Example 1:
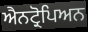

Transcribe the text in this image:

ਐਨਟ੍ਰੋਪਿਅਨ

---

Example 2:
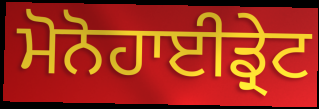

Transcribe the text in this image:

ਮੋਨੋਹਾਈਡ੍ਰੇਟ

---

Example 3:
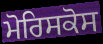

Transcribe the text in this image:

ਮੋਰਿਸਕੋਸ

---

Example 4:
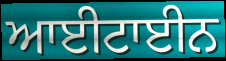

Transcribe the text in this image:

ਆਈਟਾਈਨ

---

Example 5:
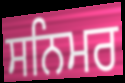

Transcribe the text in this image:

ਸਨਿਮਰ